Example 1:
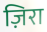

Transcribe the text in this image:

ज़िरा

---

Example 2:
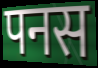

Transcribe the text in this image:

पनस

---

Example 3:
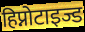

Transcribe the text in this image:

हिप्नोटाइज्ड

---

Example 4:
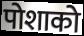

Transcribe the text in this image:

पोशाको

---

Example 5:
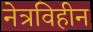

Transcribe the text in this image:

नेत्रविहीन